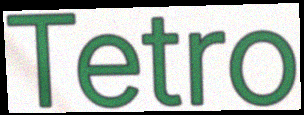
Tetro